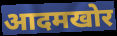
आदमखोर